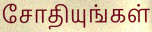
சோதியுங்கள்